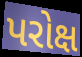
પરોક્ષ